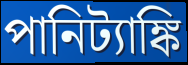
পানিট্যাঙ্কি